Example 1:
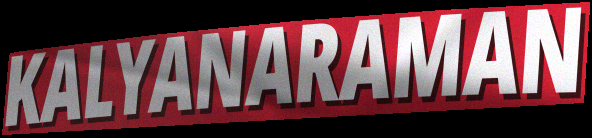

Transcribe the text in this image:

KALYANARAMAN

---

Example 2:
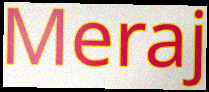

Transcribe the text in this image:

Meraj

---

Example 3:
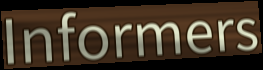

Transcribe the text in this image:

Informers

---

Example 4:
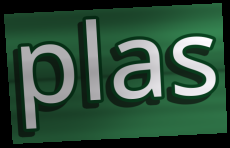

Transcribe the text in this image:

plas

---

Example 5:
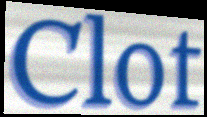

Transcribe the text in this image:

Clot